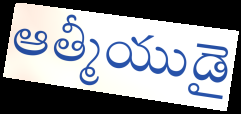
ఆత్మీయుడై